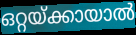
ഒറ്റയ്ക്കായാൽ